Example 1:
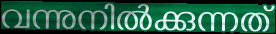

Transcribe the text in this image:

വന്നുനിൽക്കുന്നത്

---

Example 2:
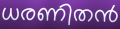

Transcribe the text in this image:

ധരണിതൻ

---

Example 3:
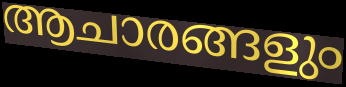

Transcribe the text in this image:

ആചാരങ്ങളും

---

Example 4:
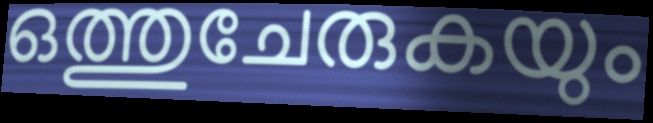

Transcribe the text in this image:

ഒത്തുചേരുകയും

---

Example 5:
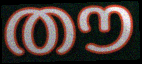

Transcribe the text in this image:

തൗ